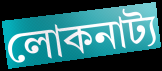
লোকনাট্য